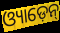
ଓ୍ୟାଡ଼େନ୍